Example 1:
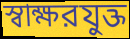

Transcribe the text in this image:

স্বাক্ষরযুক্ত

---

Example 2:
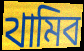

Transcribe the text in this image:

থামিব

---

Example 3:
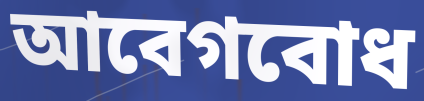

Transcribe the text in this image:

আবেগবোধ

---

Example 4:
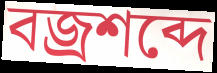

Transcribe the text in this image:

বজ্রশব্দে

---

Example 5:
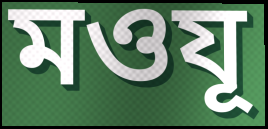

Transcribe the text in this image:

মওযূ